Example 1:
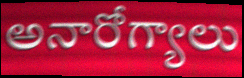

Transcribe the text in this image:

అనారోగ్యాలు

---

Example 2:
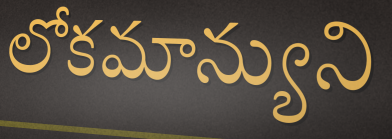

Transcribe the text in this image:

లోకమాన్యుని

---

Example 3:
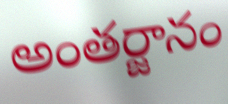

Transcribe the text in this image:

అంతర్జానం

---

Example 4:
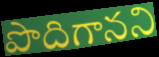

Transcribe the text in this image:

పొదిగానని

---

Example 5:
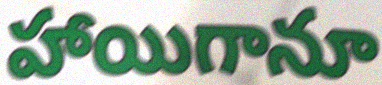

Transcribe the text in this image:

హాయిగానూ